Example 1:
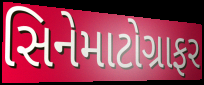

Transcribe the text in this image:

સિનેમાટોગ્રાફર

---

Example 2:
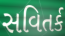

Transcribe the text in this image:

સવિતર્ક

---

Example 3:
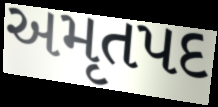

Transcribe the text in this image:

અમૃતપદ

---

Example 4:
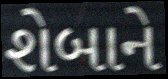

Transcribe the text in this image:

શેબાને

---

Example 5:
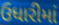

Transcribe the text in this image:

ઉધારીમાં